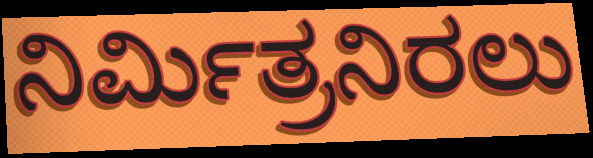
ನಿರ್ಮಿತ್ರನಿರಲು